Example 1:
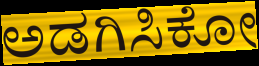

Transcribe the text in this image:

ಅಡಗಿಸಿಕೋ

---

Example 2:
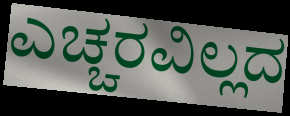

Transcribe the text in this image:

ಎಚ್ಚರವಿಲ್ಲದ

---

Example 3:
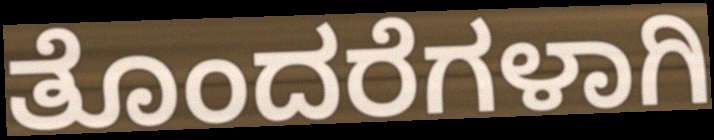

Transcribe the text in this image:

ತೊಂದರೆಗಳಾಗಿ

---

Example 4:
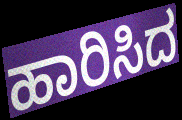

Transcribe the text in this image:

ಹಾರಿಸಿದ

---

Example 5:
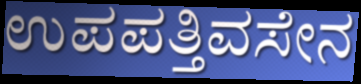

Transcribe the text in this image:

ಉಪಪತ್ತಿವಸೇನ